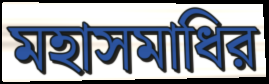
মহাসমাধির